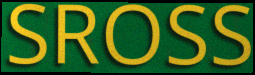
SROSS